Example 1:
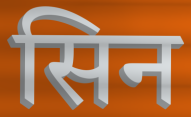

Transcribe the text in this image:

सिन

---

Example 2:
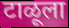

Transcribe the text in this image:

टाळूला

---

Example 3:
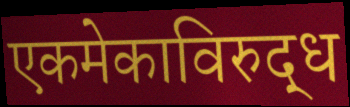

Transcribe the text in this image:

एकमेकाविरुद्ध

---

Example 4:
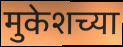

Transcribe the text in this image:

मुकेशच्या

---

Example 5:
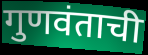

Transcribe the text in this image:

गुणवंताची